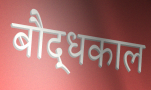
बौद्धकाल